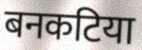
बनकटिया